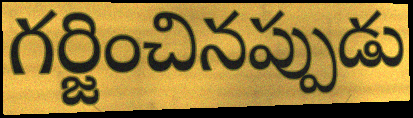
గర్జించినప్పుడు